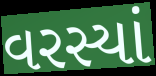
વરસ્યાં